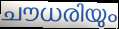
ചൗധരിയും